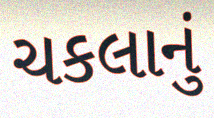
ચકલાનું